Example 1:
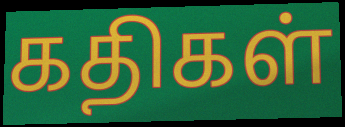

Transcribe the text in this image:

கதிகள்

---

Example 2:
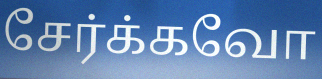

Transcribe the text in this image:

சேர்க்கவோ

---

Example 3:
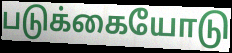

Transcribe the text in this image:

படுக்கையோடு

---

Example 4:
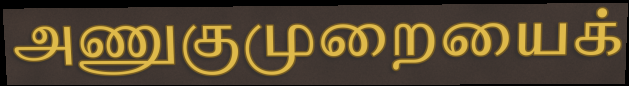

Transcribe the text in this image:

அணுகுமுறையைக்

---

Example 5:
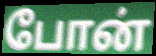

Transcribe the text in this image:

போன்